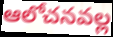
ఆలోచనవల్ల